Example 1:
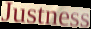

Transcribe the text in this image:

Justness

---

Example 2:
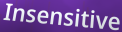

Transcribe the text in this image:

Insensitive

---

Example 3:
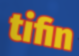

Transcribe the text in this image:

tifin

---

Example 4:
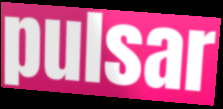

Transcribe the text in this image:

pulsar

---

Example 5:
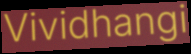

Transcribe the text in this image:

Vividhangi